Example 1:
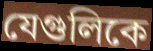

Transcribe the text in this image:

যেগুলিকে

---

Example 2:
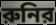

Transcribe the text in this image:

রুনির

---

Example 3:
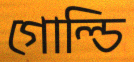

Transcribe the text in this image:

গোল্ডি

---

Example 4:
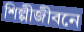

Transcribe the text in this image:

শিল্পীজীবনে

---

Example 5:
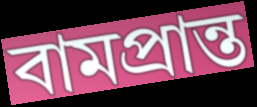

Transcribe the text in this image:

বামপ্রান্ত